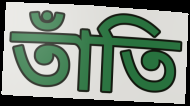
তাঁতি